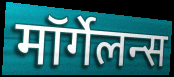
मॉर्गेलन्स